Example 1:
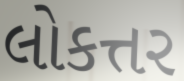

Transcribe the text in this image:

લોકત્તર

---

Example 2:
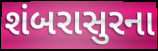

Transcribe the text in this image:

શંબરાસુરના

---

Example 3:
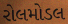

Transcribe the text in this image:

રોલમોડલ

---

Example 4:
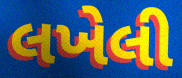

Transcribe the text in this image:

લખેલી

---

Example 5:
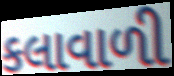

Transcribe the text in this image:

કલાવાળી